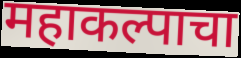
महाकल्पाचा